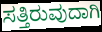
ಸತ್ತಿರುವುದಾಗಿ